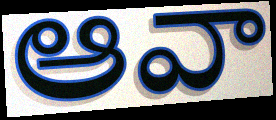
ఆవా